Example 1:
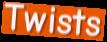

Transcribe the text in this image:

Twists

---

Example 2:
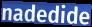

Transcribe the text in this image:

nadedide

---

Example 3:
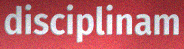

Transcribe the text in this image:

disciplinam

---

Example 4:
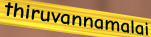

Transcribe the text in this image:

thiruvannamalai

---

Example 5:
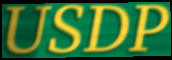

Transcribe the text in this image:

USDP